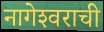
नागेश्‍वराची